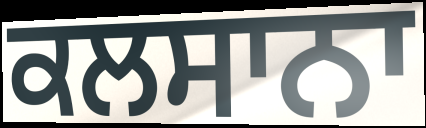
ਕਲਸਾਨਾ